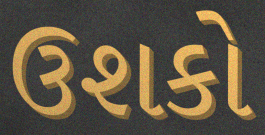
ઉશકો